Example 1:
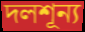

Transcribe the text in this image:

দলশূন্য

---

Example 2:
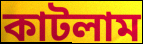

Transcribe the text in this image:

কাটলাম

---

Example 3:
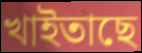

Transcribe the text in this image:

খাইতাছে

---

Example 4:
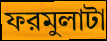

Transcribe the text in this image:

ফরমুলাটা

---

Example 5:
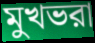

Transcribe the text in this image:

মুখভরা